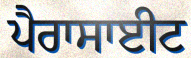
ਪੈਰਾਸਾਈਟ